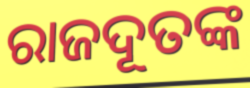
ରାଜଦୂତଙ୍କ